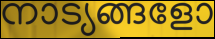
നാട്യങ്ങളോ